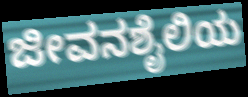
ಜೀವನಶೈಲಿಯ